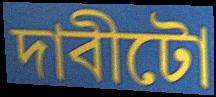
দাবীটো